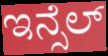
ಇನ್ಸೆಲ್